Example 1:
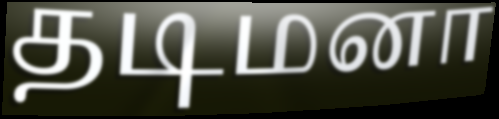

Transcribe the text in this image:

தடிமனா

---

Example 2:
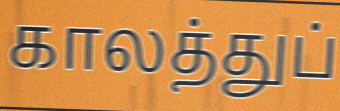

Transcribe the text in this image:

காலத்துப்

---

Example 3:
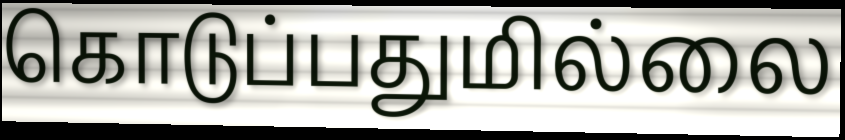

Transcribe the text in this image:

கொடுப்பதுமில்லை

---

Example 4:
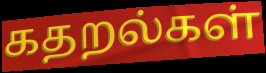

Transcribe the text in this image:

கதறல்கள்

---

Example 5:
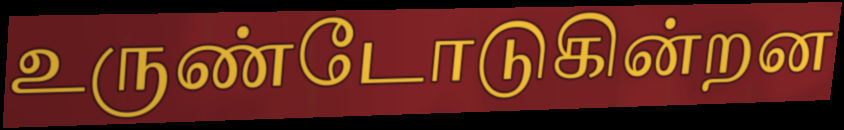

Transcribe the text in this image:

உருண்டோடுகின்றன